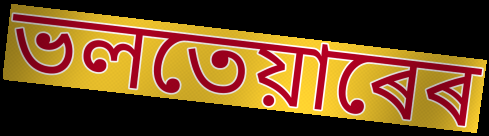
ভলতেয়াৰেৰ